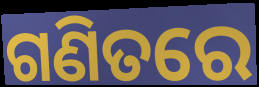
ଗଣିତରେ